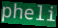
pheli